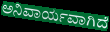
ಅನಿವಾರ್ಯವಾಗಿದೆ